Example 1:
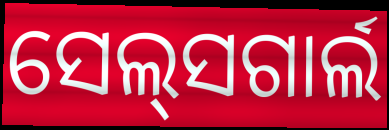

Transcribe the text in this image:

ସେଲ୍‍ସଗାର୍ଲ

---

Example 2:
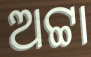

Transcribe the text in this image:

ଅଟ୍ଟା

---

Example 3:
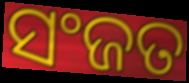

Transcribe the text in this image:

ସଂଜତ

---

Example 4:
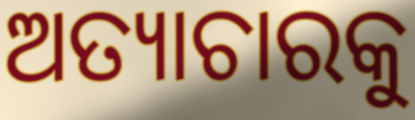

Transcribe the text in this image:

ଅତ୍ୟାଚାରକୁ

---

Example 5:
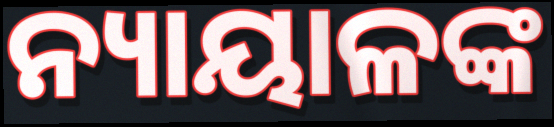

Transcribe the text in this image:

ନ୍ୟାୟାଳଙ୍କ